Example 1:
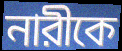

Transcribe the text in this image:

নারীকে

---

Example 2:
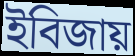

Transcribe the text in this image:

ইবিজায়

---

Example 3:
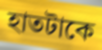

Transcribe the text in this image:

হাতটাকে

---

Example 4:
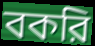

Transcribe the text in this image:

বকরি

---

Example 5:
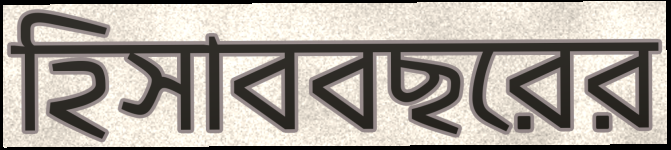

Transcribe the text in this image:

হিসাববছরের